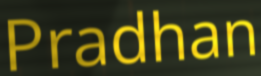
Pradhan